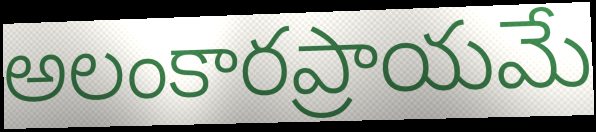
అలంకారప్రాయమే